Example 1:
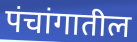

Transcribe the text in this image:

पंचांगातील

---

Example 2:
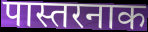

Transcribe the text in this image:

पास्तरनाक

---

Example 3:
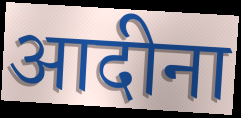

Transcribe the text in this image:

आदीना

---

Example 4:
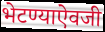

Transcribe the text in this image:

भेटण्याऐवजी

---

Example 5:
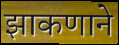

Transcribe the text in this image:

झाकणाने